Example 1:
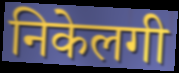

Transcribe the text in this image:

निकेलगी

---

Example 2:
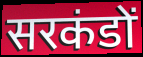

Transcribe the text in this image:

सरकंडों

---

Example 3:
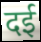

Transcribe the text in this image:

दई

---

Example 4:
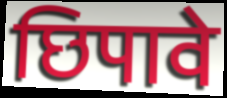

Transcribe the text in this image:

छिपावे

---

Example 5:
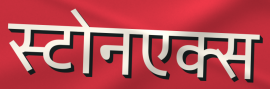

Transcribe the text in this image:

स्टोनएक्स